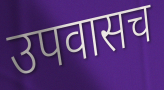
उपवासच